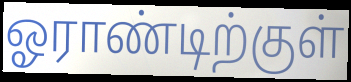
ஓராண்டிற்குள்